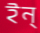
ইন্